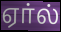
ஏர்ல்